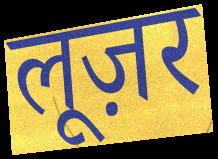
लूज़र